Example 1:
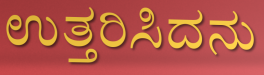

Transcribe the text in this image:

ಉತ್ತರಿಸಿದನು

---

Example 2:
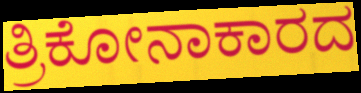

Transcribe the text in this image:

ತ್ರಿಕೋನಾಕಾರದ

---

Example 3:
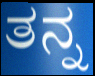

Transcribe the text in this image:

ತನ್ನ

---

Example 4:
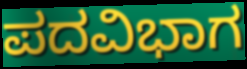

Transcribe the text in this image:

ಪದವಿಭಾಗ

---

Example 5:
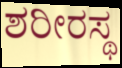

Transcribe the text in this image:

ಶರೀರಸ್ಥ